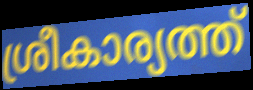
ശ്രീകാര്യത്ത്